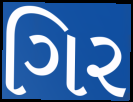
ગિર